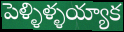
పెళ్ళిళ్ళయ్యాక